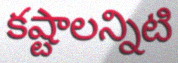
కష్టాలన్నిటి